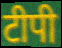
टीपी